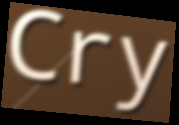
Cry